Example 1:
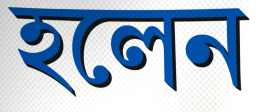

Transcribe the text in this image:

হলেন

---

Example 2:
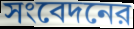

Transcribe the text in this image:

সংবেদনের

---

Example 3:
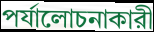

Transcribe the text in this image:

পর্যালোচনাকারী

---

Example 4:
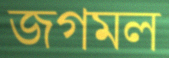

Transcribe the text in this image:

জগমল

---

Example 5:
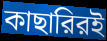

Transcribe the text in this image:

কাছারিরই